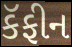
કૅફીન